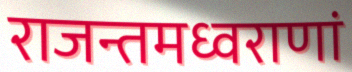
राजन्तमध्वराणां